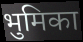
भुमिका